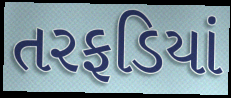
તરફડિયાં